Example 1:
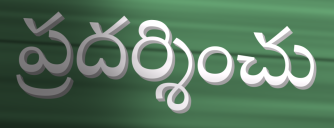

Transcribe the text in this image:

ప్రదర్శించు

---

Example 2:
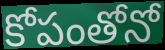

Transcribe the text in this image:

కోపంతోనో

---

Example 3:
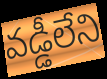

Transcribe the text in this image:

వడ్డీలేని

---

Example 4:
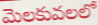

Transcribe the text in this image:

మెలకువలలో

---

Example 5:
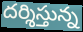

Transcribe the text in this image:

దర్శిస్తున్న